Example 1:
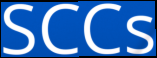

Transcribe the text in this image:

SCCs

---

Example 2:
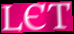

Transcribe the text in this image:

LET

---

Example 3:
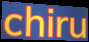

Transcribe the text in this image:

chiru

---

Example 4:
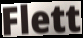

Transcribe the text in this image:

Flett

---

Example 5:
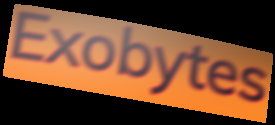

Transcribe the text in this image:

Exobytes